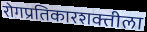
रोगप्रतिकारशक्तीला